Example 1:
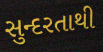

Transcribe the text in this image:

સુન્દરતાથી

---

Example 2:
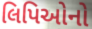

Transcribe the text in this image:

લિપિઓનો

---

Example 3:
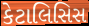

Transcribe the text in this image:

કેટાલિસિસ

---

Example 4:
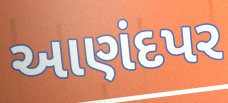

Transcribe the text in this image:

આણંદપર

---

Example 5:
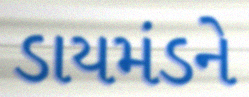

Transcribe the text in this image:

ડાયમંડને